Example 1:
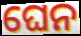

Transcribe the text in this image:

ଘେନ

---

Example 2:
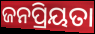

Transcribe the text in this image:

ଜନପ୍ରିୟତା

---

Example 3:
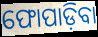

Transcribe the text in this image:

ଫୋପାଡ଼ିବା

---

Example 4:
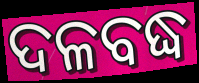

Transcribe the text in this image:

ଦଳବଦ୍ଧ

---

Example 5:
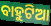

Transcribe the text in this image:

ବାହୁଟିଆ